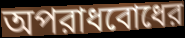
অপরাধবোধের